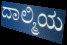
ದಾಲ್ಮಿಯ